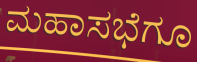
ಮಹಾಸಭೆಗೂ